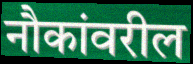
नौकांवरील